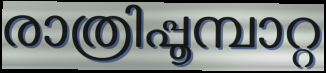
രാത്രിപ്പൂമ്പാറ്റ